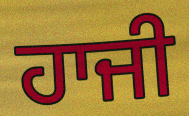
ਹਾਜੀ